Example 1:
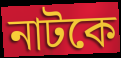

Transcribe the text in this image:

নাটকে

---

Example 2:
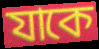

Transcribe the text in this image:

যাকে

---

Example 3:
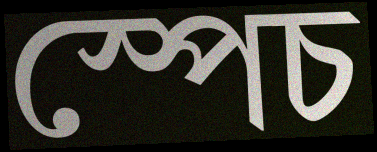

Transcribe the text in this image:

স্পেচ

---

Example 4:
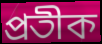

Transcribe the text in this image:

প্ৰতীক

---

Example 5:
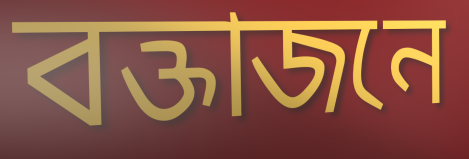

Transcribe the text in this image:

বক্তাজনে